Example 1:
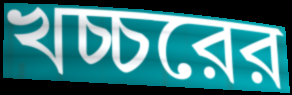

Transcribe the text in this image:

খচ্চরের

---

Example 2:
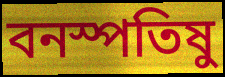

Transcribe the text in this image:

বনস্পতিষু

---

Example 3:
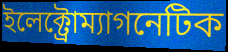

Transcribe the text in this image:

ইলেক্ট্রোম্যাগনেটিক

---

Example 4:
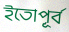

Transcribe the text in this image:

ইতোপূর্ব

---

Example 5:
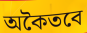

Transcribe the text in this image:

অকৈতবে